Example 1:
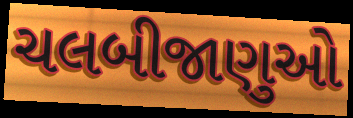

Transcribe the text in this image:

ચલબીજાણુઓ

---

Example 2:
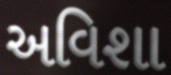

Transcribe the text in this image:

અવિશા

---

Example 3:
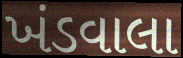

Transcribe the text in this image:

ખંડવાલા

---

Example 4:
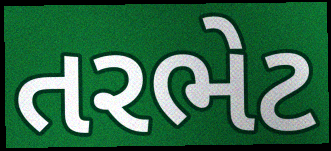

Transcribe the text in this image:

તરભેટ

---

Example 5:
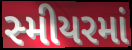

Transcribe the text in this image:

સ્મીયરમાં